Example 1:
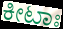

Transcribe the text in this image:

ಕೀಟಾಃ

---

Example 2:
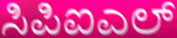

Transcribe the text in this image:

ಸಿಪಿಐಎಲ್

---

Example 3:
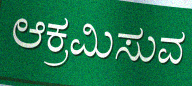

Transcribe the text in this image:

ಆಕ್ರಮಿಸುವ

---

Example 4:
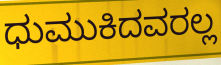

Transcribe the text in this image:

ಧುಮುಕಿದವರಲ್ಲ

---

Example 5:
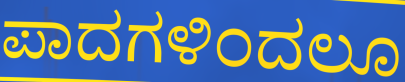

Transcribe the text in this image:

ಪಾದಗಳಿಂದಲೂ